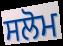
ਸਲੋਮ